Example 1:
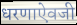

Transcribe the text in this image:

धरणाऐवजी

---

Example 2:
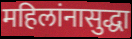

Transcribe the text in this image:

महिलांनासुद्धा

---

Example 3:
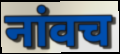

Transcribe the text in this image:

नांवच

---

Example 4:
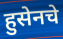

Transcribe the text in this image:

हुसेनचे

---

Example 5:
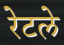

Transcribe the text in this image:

रेटले